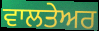
ਵਾਲਤੇਅਰ